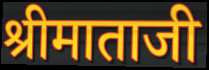
श्रीमाताजी